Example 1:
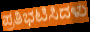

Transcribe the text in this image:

ಪ್ರತಿಭಟಿಸಿದಳು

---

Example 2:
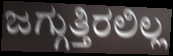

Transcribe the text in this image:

ಜಗ್ಗುತ್ತಿರಲಿಲ್ಲ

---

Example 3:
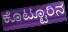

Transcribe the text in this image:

ಕೊಟ್ಟೂರಿನ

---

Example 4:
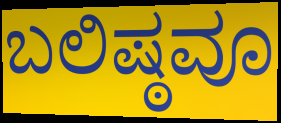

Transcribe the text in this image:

ಬಲಿಷ್ಠವೂ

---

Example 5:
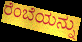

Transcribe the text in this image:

ರೆಂಬೆಯನ್ನು